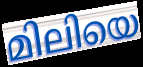
മിലിയെ